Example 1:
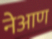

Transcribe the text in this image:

नेआण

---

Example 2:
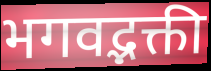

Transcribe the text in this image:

भगवद्भक्ती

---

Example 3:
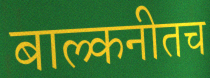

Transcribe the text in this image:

बाल्कनीतच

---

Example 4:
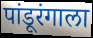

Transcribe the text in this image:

पांडूरंगाला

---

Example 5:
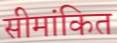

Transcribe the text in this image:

सीमांकित